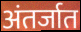
अंतर्जात